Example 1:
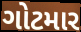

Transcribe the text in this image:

ગોટમાર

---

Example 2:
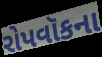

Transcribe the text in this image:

રોપવૉકના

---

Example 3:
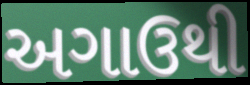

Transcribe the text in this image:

અગાઉથી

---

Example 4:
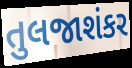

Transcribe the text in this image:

તુલજાશંકર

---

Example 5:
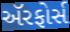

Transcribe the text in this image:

ઍરફોર્સ